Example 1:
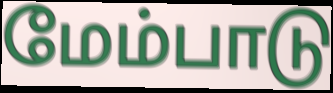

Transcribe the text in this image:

மேம்பாடு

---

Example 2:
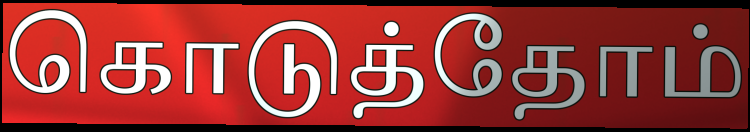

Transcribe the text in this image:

கொடுத்தோம்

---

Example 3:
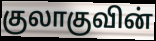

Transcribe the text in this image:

குலாகுவின்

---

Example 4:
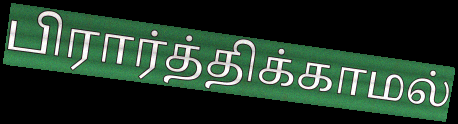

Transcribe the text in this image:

பிரார்த்திக்காமல்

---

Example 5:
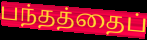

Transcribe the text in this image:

பந்தத்தைப்